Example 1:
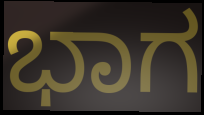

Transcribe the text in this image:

ಭಾಗ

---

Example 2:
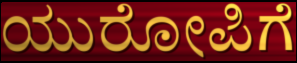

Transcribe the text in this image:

ಯುರೋಪಿಗೆ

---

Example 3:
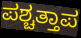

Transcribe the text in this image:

ಪಶ್ಚತ್ತಾಪ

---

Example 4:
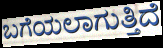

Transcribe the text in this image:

ಬಗೆಯಲಾಗುತ್ತಿದೆ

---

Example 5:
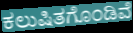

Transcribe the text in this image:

ಕಲುಷಿತಗೊಂಡಿವೆ